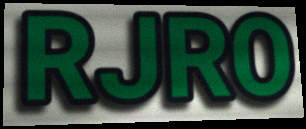
RJRO